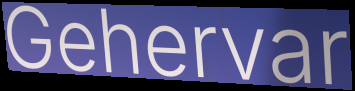
Gehervar